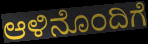
ಆಳಿನೊಂದಿಗೆ